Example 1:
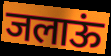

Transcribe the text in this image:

जलाऊं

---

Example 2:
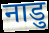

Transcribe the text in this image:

नाडु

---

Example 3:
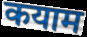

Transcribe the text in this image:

कयाम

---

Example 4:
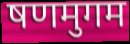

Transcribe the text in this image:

षणमुगम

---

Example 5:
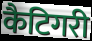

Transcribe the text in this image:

कैटिगरी